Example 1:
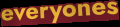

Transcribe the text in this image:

everyones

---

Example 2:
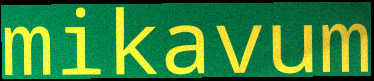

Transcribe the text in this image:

mikavum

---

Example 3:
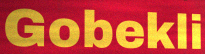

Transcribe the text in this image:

Gobekli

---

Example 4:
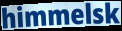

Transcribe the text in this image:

himmelsk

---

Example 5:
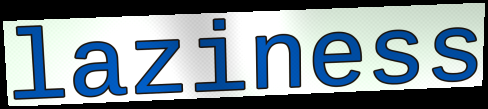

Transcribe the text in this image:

laziness